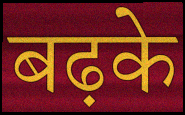
बढ़के